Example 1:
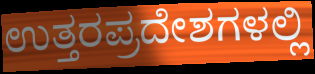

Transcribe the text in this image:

ಉತ್ತರಪ್ರದೇಶಗಳಲ್ಲಿ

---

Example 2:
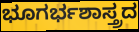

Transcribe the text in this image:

ಭೂಗರ್ಭಶಾಸ್ತ್ರದ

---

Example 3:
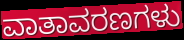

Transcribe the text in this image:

ವಾತಾವರಣಗಳು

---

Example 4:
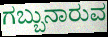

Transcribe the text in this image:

ಗಬ್ಬುನಾರುವ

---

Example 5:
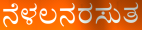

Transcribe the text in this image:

ನೆಳಲನರಸುತ